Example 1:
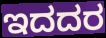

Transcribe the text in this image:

ಇದದರ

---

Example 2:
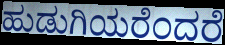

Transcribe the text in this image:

ಹುಡುಗಿಯರೆಂದರೆ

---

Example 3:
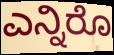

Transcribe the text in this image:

ಎನ್ನಿರೊ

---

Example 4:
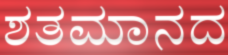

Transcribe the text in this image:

ಶತಮಾನದ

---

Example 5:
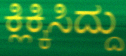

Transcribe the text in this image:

ಕ್ಲಿಕ್ಕಿಸಿದ್ದು